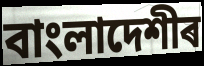
বাংলাদেশীৰ